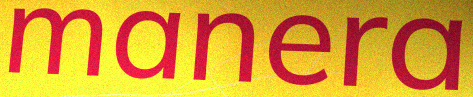
manera